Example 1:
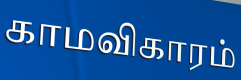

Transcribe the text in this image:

காமவிகாரம்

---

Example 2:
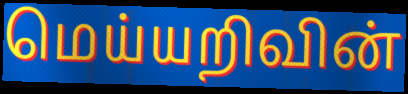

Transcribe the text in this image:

மெய்யறிவின்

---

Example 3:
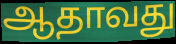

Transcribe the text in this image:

ஆதாவது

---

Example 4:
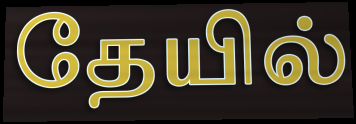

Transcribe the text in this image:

தேயில்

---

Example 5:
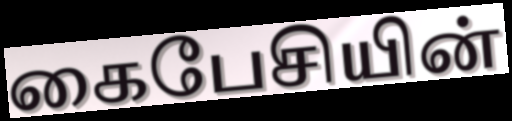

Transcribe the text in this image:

கைபேசியின்